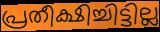
പ്രതീക്ഷിച്ചിട്ടില്ല